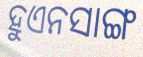
ହୁଏନସାଙ୍ଗ